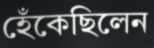
হেঁকেছিলেন